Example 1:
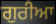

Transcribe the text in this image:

ਗੁਰੀਆ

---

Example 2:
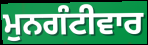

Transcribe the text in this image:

ਮੁਨਗੰਟੀਵਾਰ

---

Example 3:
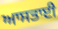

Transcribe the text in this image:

ਆਸਤਾਈ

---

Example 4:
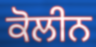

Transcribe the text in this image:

ਕੋਲੀਨ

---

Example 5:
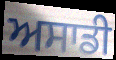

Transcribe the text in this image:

ਅਸਾਡੀ